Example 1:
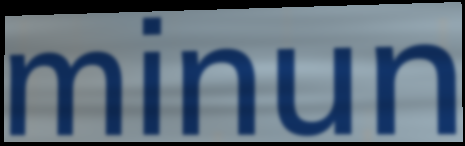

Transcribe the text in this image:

minun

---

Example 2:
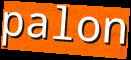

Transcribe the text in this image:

palon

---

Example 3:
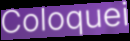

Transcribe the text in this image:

Coloquei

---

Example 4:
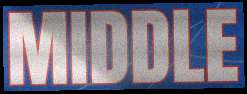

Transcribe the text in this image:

MIDDLE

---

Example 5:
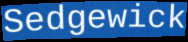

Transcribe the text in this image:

Sedgewick